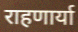
राहणार्या